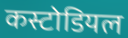
कस्टोडियल